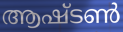
ആഷ്ടൺ